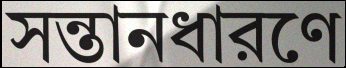
সন্তানধারণে